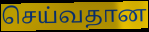
செய்வதான